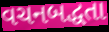
વચનબદ્ધતા